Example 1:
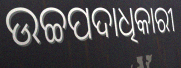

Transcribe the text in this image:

ଉଚ୍ଚପଦାଧିକାରୀ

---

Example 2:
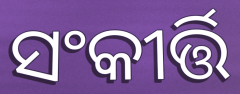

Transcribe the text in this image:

ସଂକୀର୍ତ୍ତି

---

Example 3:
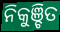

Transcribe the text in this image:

ନିକୁଞ୍ଚିତ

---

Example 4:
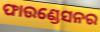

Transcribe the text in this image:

ଫାଉଣ୍ଡେସନର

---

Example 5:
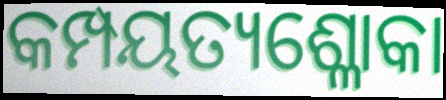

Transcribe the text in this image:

କମ୍ପୟତ୍ୟଶ୍ଳୋକା